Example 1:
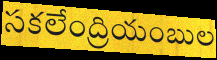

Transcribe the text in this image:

సకలేంద్రియంబుల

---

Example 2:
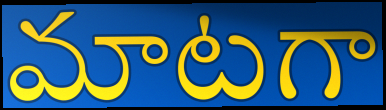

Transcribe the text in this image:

మాటగా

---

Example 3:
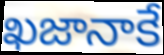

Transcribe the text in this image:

ఖజానాకే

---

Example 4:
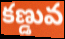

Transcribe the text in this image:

కణ్డువ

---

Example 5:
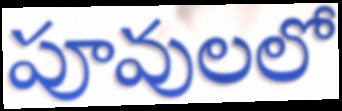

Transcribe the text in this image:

పూవులలో